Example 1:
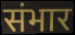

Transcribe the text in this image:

संभार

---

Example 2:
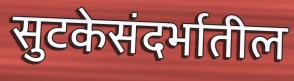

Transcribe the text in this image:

सुटकेसंदर्भातील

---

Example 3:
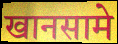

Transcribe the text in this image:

खानसामे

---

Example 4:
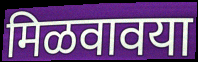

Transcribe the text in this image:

मिळवावया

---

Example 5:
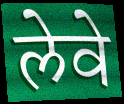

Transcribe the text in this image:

लेवे